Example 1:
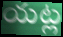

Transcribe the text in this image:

యట్ల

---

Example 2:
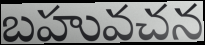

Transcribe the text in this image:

బహువచన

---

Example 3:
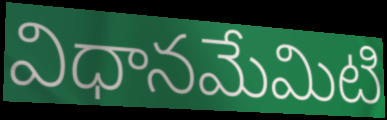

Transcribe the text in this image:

విధానమేమిటి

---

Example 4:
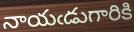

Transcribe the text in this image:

నాయఁడుగారికి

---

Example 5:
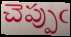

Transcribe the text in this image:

చెప్పుఁ